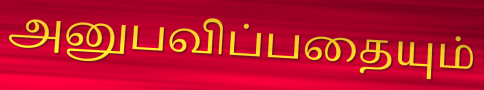
அனுபவிப்பதையும்